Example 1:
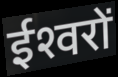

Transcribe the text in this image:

ईश्वरों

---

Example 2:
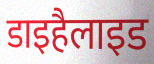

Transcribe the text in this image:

डाइहैलाइड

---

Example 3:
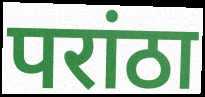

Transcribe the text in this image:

परांठा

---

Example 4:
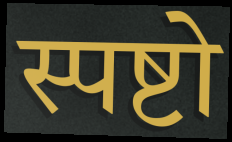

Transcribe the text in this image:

स्पष्टो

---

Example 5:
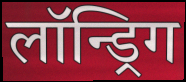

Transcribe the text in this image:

लॉन्ड्रिग